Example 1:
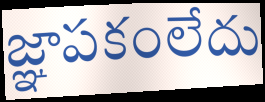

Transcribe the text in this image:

జ్ఞాపకంలేదు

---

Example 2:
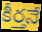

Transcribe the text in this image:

కీర్తనే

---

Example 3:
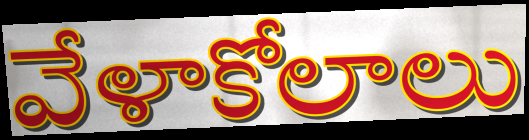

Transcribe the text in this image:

వేళాకోలాలు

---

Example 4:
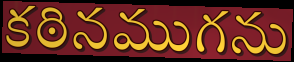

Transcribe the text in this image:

కఠినముగను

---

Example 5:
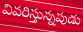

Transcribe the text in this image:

వివరిస్తున్నపుడు